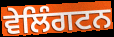
ਵੇਲਿੰਗਟਨ